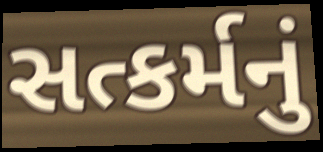
સત્કર્મનું